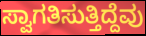
ಸ್ವಾಗತಿಸುತ್ತಿದ್ದೆವು